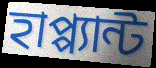
হাপ্প্যান্ট